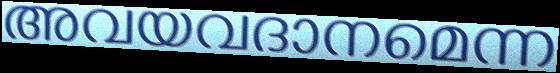
അവയവദാനമെന്ന